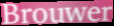
Brouwer